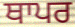
ਥਾਪਰ